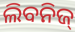
ଲିବନିଜ୍